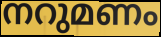
നറുമണം